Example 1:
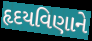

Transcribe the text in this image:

હૃદયવિણાને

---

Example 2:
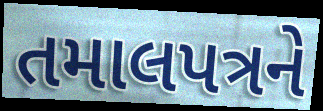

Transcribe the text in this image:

તમાલપત્રને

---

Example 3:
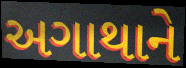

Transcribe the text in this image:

અગાથાને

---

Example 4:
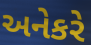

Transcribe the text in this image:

અનેકરે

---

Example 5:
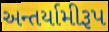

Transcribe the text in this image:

અન્તર્યામીરૂપ